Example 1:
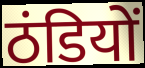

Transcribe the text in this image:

ठंडियों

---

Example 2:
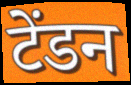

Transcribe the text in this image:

टेंडन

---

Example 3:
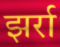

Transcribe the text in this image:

झर्रा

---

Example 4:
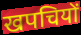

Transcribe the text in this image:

खपचियों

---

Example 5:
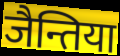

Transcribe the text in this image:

जैन्तिया